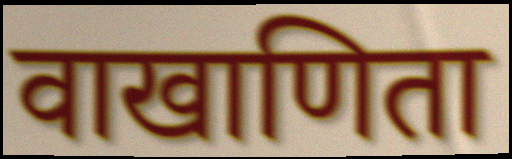
वाखाणिता